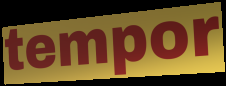
tempor